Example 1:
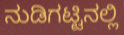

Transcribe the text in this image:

ನುಡಿಗಟ್ಟಿನಲ್ಲಿ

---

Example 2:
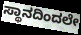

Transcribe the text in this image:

ಸ್ಥಾನದಿಂದಲೇ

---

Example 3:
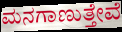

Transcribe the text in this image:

ಮನಗಾಣುತ್ತೇವೆ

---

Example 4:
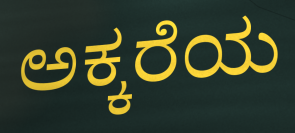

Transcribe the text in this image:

ಅಕ್ಕರೆಯ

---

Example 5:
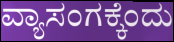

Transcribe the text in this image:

ವ್ಯಾಸಂಗಕ್ಕೆಂದು